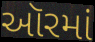
ઑરમાં